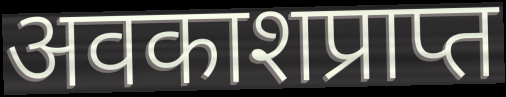
अवकाशप्राप्त